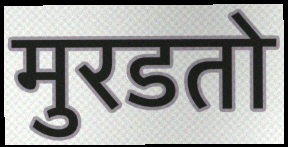
मुरडतो